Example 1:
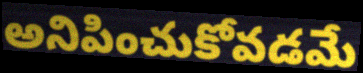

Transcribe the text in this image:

అనిపించుకోవడమే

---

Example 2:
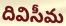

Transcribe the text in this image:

దివిసీమ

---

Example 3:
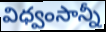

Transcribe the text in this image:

విధ్వంసాన్నీ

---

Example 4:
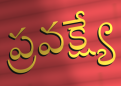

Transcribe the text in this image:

ప్రవక్ష్యే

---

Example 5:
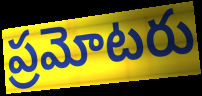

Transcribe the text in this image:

ప్రమోటరు